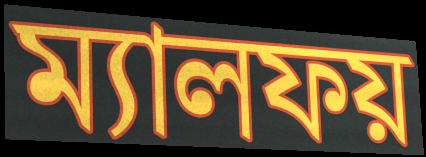
ম্যালফয়